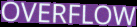
OVERFLOW